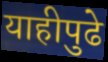
याहीपुढे